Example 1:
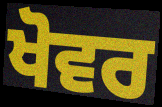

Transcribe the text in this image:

ਖੋਵਰ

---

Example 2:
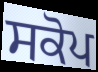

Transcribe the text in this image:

ਸਕੋਪ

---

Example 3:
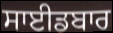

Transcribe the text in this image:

ਸਾਈਡਬਾਰ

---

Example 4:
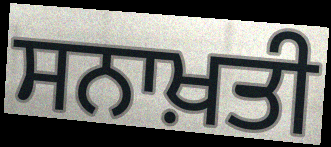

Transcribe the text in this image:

ਸਨਾਖ਼ਤੀ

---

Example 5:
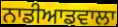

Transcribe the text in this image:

ਨਾਡੀਆਡਵਾਲਾ